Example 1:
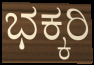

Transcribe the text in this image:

ಭಕ್ಕರಿ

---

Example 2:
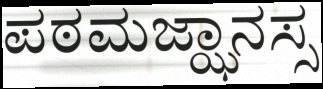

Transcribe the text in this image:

ಪಠಮಜ್ಝಾನಸ್ಸ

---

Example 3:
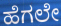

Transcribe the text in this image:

ಹೆಗಲೇ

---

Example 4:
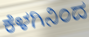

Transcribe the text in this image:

ಕೆಳಗಿನಿಂದ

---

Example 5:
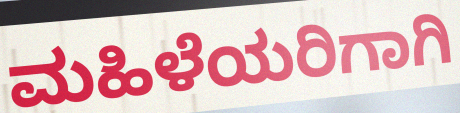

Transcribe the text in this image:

ಮಹಿಳೆಯರಿಗಾಗಿ